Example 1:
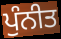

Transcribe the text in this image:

ਪੁੰਨੀਤ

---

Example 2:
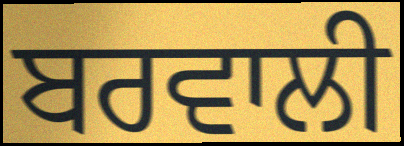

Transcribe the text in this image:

ਬਰਵਾਲੀ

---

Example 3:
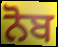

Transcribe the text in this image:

ਨੋਬ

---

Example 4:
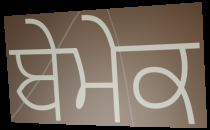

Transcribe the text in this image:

ਬੇਮੇਕ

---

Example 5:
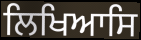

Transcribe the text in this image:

ਲਿਖਿਆਸਿ